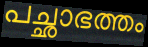
പച്ഛാഭത്തം